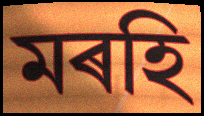
মৰহি